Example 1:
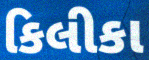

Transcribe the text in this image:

કિલીકા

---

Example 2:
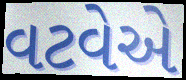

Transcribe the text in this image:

વટવેએ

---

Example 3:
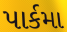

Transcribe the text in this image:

પાર્કમા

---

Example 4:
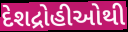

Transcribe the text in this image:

દેશદ્રોહીઓથી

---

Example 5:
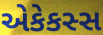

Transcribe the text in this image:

એકેકસ્સ